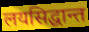
लयसिद्धान्त